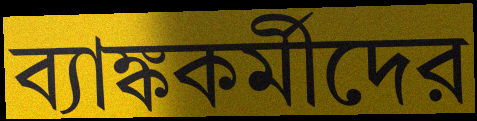
ব্যাঙ্ককর্মীদের